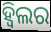
ହ୍ଵିଲର